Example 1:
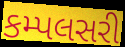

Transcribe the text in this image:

કમ્પલસરી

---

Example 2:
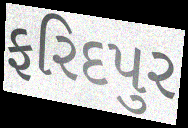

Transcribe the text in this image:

ફરિદપુર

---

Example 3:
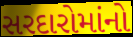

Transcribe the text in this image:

સરદારોમાંનો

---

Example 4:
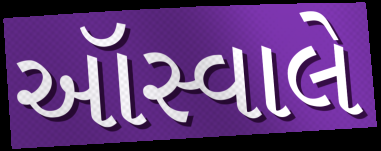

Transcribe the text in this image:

ઑસ્વાલે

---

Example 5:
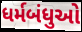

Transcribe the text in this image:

ધર્મબંધુઓ